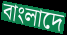
বাংলাদে